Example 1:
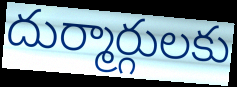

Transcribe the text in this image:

దుర్మార్గులకు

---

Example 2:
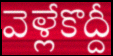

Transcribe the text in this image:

వెళ్లేకొద్దీ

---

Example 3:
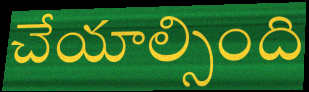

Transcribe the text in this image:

చేయాల్సింది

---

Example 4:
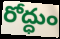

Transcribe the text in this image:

రోద్ధుం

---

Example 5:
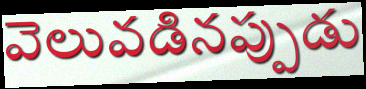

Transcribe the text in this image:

వెలువడినప్పుడు